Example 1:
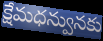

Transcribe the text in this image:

క్షేమధన్వునకు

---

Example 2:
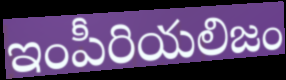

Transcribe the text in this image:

ఇంపీరియలిజం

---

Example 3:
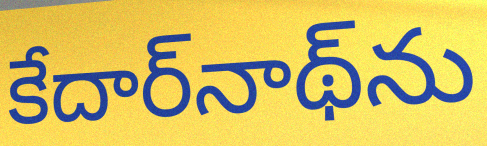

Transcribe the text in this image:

కేదార్‌నాథ్‌ను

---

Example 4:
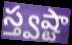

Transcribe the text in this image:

స్త్వష్టా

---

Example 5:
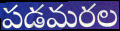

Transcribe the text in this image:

పడమరల